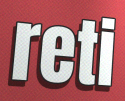
reti